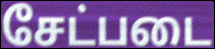
சேட்படை